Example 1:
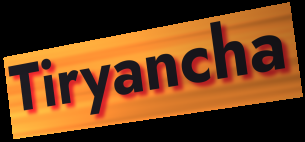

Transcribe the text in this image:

Tiryancha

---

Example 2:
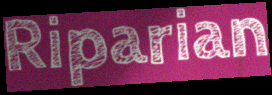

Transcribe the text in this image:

Riparian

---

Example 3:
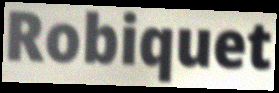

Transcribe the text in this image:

Robiquet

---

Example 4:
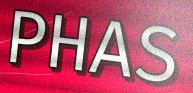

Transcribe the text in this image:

PHAS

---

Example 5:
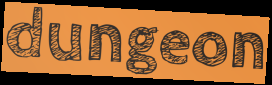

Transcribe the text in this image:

dungeon